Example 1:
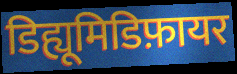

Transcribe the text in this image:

डिह्यूमिडिफ़ायर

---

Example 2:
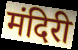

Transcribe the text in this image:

मंदिरी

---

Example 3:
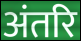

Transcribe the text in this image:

अंतरि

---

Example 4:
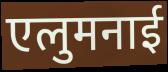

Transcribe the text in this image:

एलुमनाई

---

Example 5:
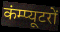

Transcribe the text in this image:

कंम्प्यूटरों